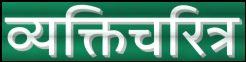
व्यक्तिचरित्र